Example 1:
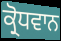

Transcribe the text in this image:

ਕ੍ਰੋਧਵਾਨ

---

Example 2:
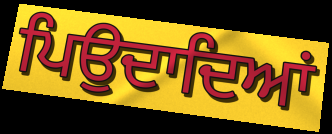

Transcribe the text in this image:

ਪਿਉਦਾਦਿਆਂ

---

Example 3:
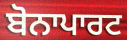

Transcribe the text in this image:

ਬੋਨਾਪਾਰਟ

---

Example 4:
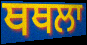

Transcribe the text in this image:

ਥਥਲਾ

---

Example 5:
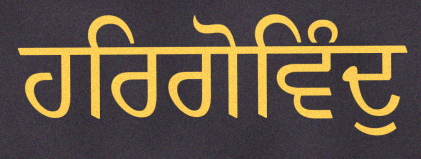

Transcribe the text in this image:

ਹਰਿਗੋਵਿੰਦੁ